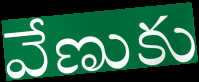
వేణుకు